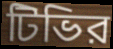
টিভির